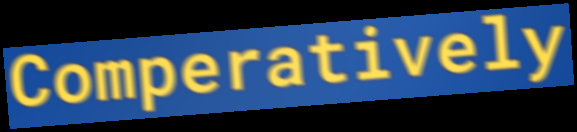
Comperatively